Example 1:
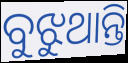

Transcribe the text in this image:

ବୁଝୁଥାନ୍ତି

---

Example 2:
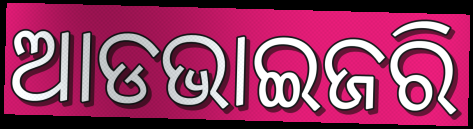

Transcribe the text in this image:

ଆଡଭାଇଜରି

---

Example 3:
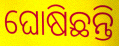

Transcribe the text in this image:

ଘୋଷିଛନ୍ତି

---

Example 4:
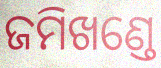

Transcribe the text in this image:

ଜମିଖଣ୍ଡେ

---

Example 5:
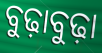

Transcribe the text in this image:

ବୁଢ଼ାବୁଢ଼ା